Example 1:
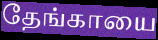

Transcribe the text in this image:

தேங்காயை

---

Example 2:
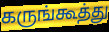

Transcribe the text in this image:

கருங்கூத்து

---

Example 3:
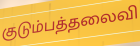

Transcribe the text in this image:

குடும்பத்தலைவி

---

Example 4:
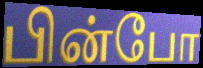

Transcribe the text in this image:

பின்போ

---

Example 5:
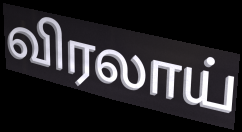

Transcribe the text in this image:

விரலாய்